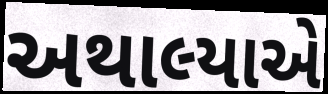
અથાલ્યાએ